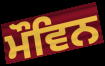
ਮੌਵਿਨ